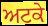
ਅਟਕੇ